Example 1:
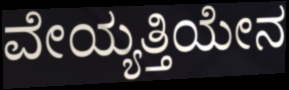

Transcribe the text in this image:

ವೇಯ್ಯತ್ತಿಯೇನ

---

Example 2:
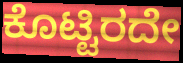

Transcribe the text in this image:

ಕೊಟ್ಟಿರದೇ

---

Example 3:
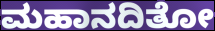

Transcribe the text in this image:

ಮಹಾನದಿತೋ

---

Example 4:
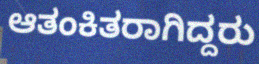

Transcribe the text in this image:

ಆತಂಕಿತರಾಗಿದ್ದರು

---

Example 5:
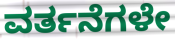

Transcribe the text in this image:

ವರ್ತನೆಗಳೇ